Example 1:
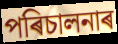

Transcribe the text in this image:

পৰিচালনাৰ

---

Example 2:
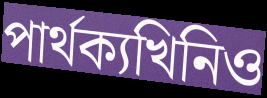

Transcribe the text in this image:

পাৰ্থক্যখিনিও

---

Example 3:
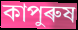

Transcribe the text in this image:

কাপুৰুষ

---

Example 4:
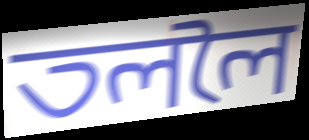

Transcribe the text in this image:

তললৈ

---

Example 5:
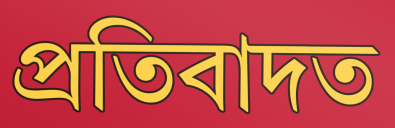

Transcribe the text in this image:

প্ৰতিবাদত